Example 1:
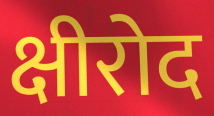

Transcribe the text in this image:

क्षीरोद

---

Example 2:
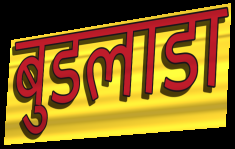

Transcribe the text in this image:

बुडलाडा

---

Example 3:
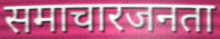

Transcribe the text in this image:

समाचारजनता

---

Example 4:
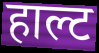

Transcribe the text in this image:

हाल्ट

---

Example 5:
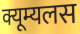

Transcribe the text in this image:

क्यूम्यलस